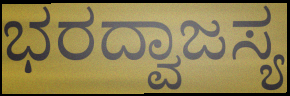
ಭರದ್ವಾಜಸ್ಯ